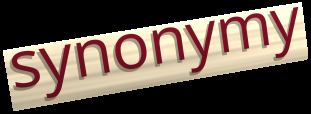
synonymy